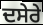
ਦਸੇਰੇ